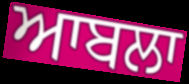
ਆਬਲਾ